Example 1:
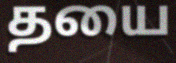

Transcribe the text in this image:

தயை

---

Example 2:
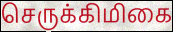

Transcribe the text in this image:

செருக்கிமிகை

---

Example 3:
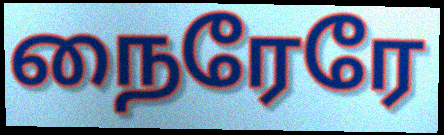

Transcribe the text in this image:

நைரேரே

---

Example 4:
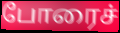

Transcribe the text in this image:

போரைச்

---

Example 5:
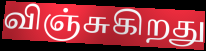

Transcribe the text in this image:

விஞ்சுகிறது